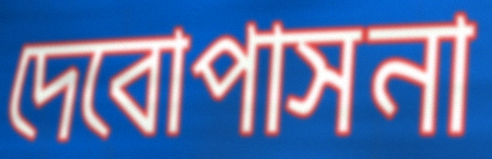
দেবোপাসনা